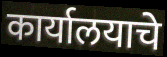
कार्यालयाचे